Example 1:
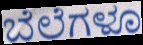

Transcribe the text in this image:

ಬೆಲೆಗಳೂ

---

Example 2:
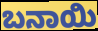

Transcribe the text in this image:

ಬನಾಯಿ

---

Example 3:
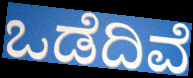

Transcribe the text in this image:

ಒಡೆದಿವೆ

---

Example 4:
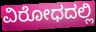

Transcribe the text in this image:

ವಿರೋಧದಲ್ಲಿ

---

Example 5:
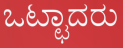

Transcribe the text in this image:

ಒಟ್ಟಾದರು